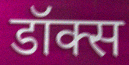
डॉक्स